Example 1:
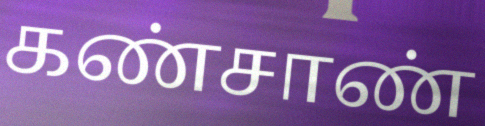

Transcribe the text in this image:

கண்சாண்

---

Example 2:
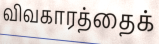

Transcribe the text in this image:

விவகாரத்தைக்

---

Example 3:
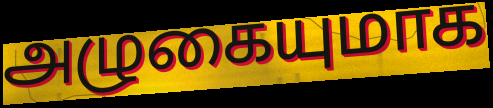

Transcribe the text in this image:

அழுகையுமாக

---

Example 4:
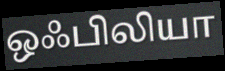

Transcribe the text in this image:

ஒஃபிலியா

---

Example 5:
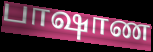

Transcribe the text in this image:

பாஷாண